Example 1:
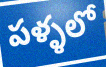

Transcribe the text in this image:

పళ్ళలో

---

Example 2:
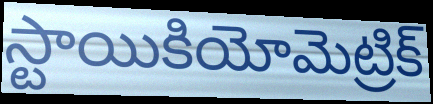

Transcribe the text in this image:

స్టాయికియోమెట్రిక్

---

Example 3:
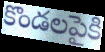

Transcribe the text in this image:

కొండలపైకి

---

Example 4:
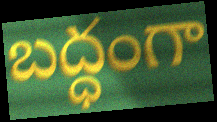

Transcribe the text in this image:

బద్ధంగా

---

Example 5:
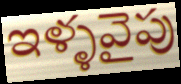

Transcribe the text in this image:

ఇళ్ళవైపు